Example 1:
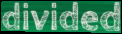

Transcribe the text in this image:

divided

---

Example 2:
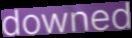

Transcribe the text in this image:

downed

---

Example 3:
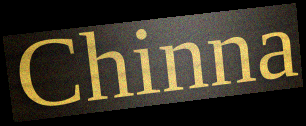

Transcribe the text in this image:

Chinna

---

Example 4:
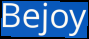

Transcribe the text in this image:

Bejoy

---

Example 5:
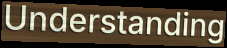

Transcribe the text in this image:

Understanding